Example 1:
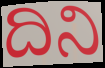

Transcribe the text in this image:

ದಿನಿ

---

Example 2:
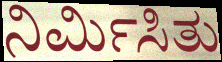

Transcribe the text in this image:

ನಿರ್ಮಿಸಿತು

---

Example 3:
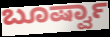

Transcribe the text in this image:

ಬೂರ್ಷ್ವಾ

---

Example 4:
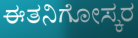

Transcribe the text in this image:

ಈತನಿಗೋಸ್ಕರ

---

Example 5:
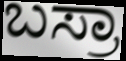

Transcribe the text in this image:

ಬಸ್ರಾ